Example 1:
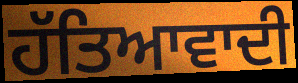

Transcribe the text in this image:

ਹੱਤਿਆਵਾਦੀ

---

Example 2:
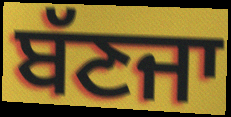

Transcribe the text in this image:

ਬੱਣਜਾ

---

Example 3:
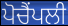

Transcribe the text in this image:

ਪੋਚੈਂਪਲੀ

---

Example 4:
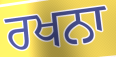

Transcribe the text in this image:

ਰਖਨਾ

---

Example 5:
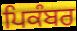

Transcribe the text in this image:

ਪਿਕੰਬਰ